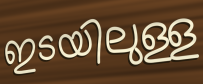
ഇടയിലുള്ള